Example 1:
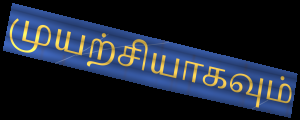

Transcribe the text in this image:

முயற்சியாகவும்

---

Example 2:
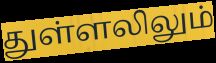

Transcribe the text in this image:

துள்ளலிலும்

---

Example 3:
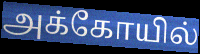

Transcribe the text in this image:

அக்கோயில்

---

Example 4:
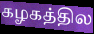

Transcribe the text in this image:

கழகத்தில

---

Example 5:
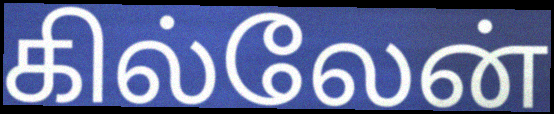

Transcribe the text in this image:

கில்லேன்